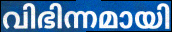
വിഭിന്നമായി